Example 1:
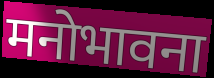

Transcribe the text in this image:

मनोभावना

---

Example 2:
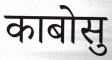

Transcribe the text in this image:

काबोसु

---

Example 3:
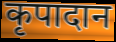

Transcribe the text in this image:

कृपादान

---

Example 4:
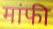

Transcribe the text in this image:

मांफी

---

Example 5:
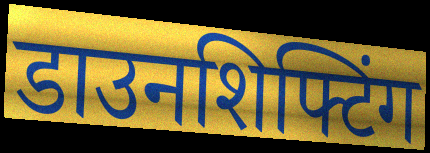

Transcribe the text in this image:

डाउनशिफ्टिंग